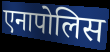
एनापोलिस